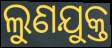
ଲୁଣଯୁକ୍ତ